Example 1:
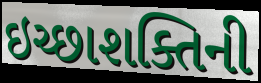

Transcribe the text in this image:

ઇચ્છાશક્તિની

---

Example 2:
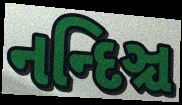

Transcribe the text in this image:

નન્દિઞ્ચ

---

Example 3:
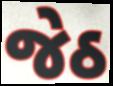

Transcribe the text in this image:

જેઠ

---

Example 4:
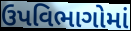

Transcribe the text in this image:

ઉપવિભાગોમાં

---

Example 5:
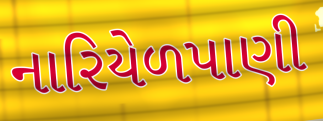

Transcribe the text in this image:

નારિયેળપાણી